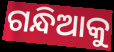
ଗନ୍ଧିଆକୁ